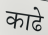
काढे